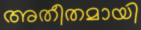
അതീതമായി